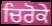
ਚਿਰੋਕੇ